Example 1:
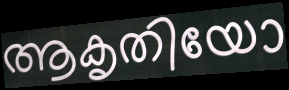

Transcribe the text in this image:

ആകൃതിയോ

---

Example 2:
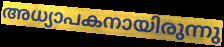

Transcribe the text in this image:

അധ്യാപകനായിരുന്നു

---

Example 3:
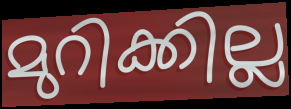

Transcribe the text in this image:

മുറിക്കില്ല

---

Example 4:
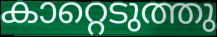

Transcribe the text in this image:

കാറ്റെടുത്തു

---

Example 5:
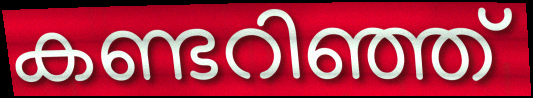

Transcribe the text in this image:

കണ്ടറിഞ്ഞ്